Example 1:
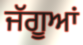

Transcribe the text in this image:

ਜੱਗੂਆਂ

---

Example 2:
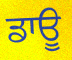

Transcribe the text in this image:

ਡਾਊ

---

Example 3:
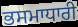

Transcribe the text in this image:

ਭਸਮਾਧਾਰੀ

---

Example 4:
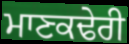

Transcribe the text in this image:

ਮਾਣਕਢੇਰੀ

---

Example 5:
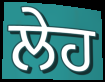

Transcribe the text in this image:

ਲੇਹ